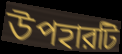
উপহারটি